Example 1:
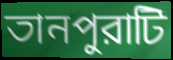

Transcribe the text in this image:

তানপুরাটি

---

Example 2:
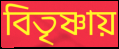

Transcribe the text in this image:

বিতৃষ্ণায়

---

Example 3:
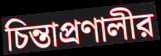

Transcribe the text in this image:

চিন্তাপ্রণালীর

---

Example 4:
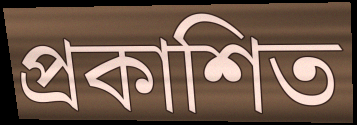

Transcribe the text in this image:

প্রকাশিত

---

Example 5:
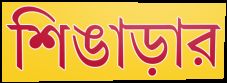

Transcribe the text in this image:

শিঙাড়ার